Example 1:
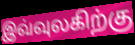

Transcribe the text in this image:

இவ்வுலகிற்கு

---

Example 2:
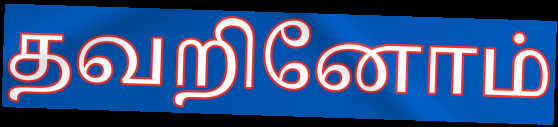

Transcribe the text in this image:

தவறினோம்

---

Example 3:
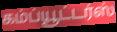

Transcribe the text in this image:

கம்ப்யூட்டர்ஸ்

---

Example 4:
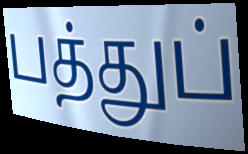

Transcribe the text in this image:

பத்துப்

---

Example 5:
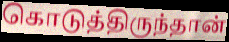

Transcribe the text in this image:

கொடுத்திருந்தான்